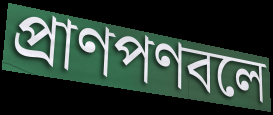
প্রাণপণবলে